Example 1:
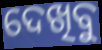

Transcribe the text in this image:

ଦେଖିବୁ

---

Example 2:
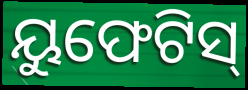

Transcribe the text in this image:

ୟୁଫେଟିସ୍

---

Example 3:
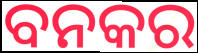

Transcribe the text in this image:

ବନକର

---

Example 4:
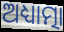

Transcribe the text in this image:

ଅଧ୍ୟାତ୍ମା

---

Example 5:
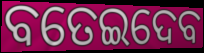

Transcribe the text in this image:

ବତେଇଦେବ